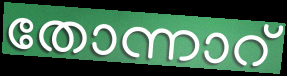
തോന്നാറ്